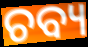
ଚବ୍ୟ